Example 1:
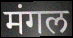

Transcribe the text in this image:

मंगल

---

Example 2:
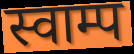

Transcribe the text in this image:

स्वाम्प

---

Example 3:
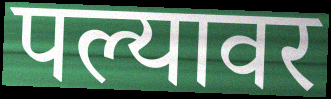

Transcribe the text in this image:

पल्यावर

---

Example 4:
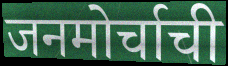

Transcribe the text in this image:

जनमोर्चाची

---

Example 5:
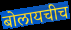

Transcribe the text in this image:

बोलायचीच